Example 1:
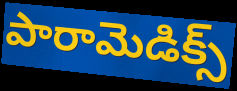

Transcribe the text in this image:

పారామెడిక్స్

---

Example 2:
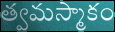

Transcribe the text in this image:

త్వమస్మాకం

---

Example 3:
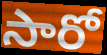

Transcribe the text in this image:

సారో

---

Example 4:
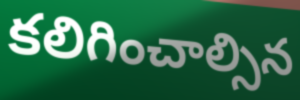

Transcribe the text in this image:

కలిగించాల్సిన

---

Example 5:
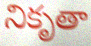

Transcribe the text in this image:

నికృతా